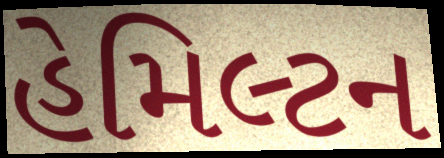
હેમિલ્ટન